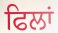
ਫਿਲਾਂ